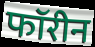
फॉरीन